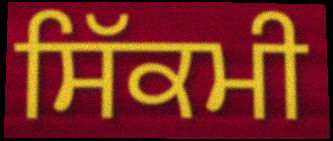
ਸਿੱਕਮੀ